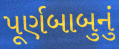
પૂર્ણબાબુનું